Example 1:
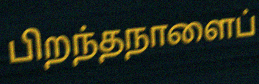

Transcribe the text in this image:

பிறந்தநாளைப்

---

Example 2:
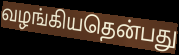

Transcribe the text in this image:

வழங்கியதென்பது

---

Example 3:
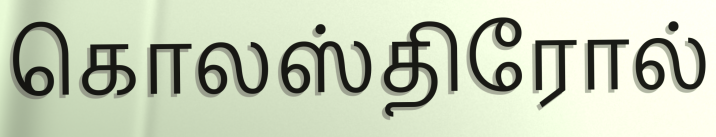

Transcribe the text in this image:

கொலஸ்திரோல்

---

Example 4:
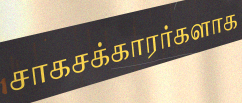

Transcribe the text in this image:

சாகசக்காரர்களாக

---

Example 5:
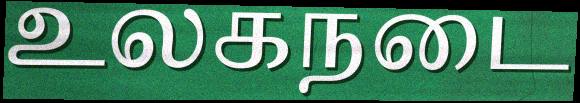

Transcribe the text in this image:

உலகநடை